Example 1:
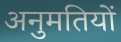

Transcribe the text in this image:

अनुमतियों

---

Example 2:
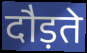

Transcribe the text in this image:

दौड़ते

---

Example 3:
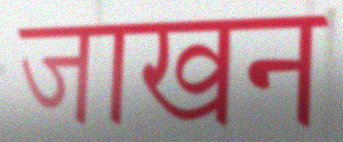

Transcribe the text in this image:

जाखन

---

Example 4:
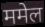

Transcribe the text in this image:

ममेल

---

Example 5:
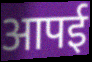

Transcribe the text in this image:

आपई